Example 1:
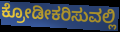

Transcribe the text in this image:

ಕ್ರೋಡೀಕರಿಸುವಲ್ಲಿ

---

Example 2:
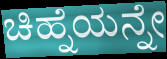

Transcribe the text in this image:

ಚಿಹ್ನೆಯನ್ನೇ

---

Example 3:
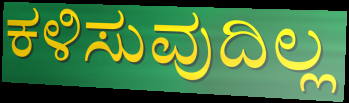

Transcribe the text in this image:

ಕಳಿಸುವುದಿಲ್ಲ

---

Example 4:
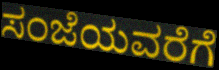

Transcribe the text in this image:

ಸಂಜೆಯವರೆಗೆ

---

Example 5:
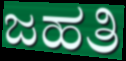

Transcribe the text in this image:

ಜಹತಿ